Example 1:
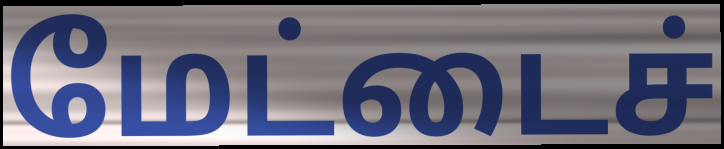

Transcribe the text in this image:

மேட்டைச்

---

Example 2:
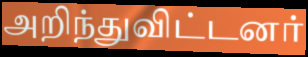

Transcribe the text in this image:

அறிந்துவிட்டனர்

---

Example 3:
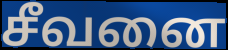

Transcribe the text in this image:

சீவனை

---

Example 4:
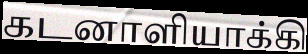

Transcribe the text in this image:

கடனாளியாக்கி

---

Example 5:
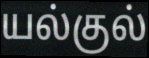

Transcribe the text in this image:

யல்குல்